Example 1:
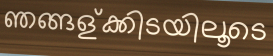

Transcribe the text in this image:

ഞങ്ങള്ക്കിടയിലൂടെ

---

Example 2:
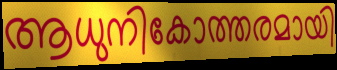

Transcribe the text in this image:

ആധുനികോത്തരമായി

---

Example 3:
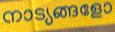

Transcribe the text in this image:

നാട്യങ്ങളോ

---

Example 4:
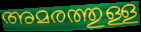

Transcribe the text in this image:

അമരത്തുള്ള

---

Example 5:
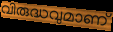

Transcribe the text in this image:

വിരുദ്ധവുമാണ്